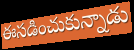
ఈసడించుకున్నాడు